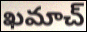
ఖమాచ్